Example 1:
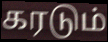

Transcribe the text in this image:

கரடும்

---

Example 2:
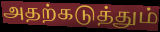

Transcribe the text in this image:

அதற்கடுத்தும்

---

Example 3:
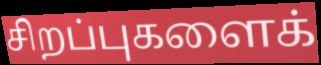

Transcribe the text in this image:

சிறப்புகளைக்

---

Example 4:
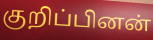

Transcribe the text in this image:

குறிப்பினன்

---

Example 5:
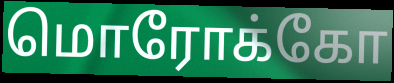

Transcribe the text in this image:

மொரோக்கோ